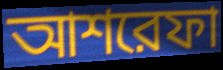
আশরেফা